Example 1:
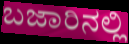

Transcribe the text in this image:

ಬಜಾರಿನಲ್ಲಿ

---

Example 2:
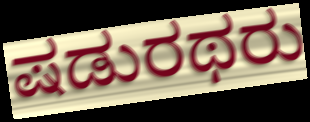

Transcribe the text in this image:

ಷಡುರಥರು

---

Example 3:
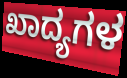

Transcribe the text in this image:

ಖಾದ್ಯಗಳ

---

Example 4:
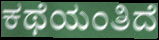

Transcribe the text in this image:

ಕಥೆಯಂತಿದೆ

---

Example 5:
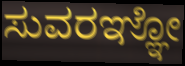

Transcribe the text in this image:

ಸುವರಞ್ಞೋ